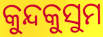
କୁନ୍ଦକୁସୁମ